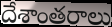
దేశాంతరాలు